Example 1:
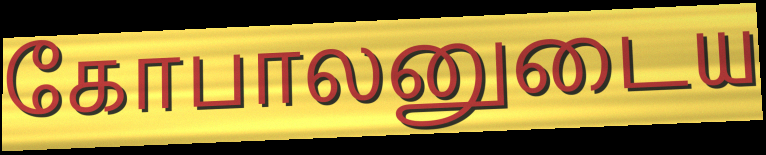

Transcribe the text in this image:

கோபாலனுடைய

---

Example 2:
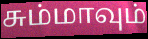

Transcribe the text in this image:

சும்மாவும்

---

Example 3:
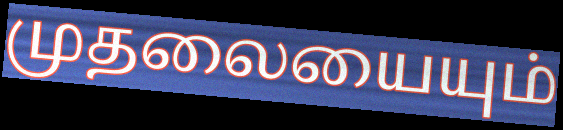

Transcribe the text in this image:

முதலையையும்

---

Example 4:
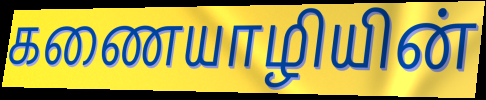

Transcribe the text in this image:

கணையாழியின்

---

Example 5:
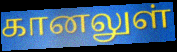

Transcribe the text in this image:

கானலுள்